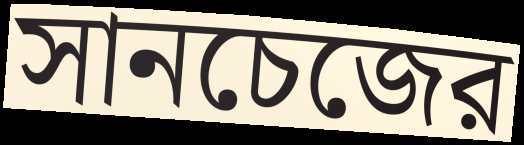
সানচেজের